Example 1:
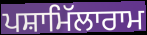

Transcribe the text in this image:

ਪਸ਼ਾਮਿੱਲਾਰਾਮ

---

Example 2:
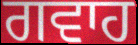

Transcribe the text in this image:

ਗਵਾਹ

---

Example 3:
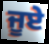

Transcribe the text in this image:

ਜੂਏ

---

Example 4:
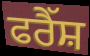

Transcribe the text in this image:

ਫਰੈੱਸ਼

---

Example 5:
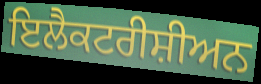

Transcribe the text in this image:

ਇਲੈਕਟਰੀਸ਼ੀਅਨ